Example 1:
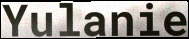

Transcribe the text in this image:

Yulanie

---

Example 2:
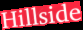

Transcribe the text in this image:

Hillside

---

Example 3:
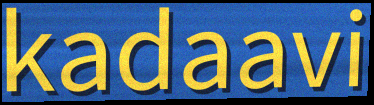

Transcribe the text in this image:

kadaavi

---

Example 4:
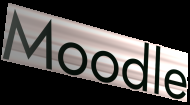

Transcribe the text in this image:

Moodle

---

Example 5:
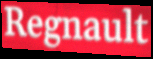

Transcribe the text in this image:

Regnault